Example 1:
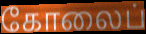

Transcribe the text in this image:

கோலைப்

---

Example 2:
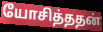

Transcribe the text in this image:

யோசித்ததன்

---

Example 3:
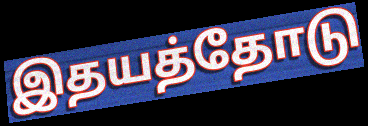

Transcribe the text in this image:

இதயத்தோடு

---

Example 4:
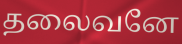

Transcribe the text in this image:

தலைவனே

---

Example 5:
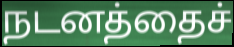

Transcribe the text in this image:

நடனத்தைச்